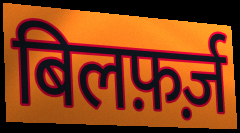
बिलफ़र्ज़